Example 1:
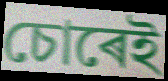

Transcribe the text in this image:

চোৰেই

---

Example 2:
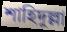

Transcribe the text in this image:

শাহিদুল্লা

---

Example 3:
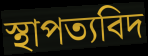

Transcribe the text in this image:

স্থাপত্যবিদ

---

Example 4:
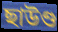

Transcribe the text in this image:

ছাউণ্ড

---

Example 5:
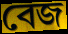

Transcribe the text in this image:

বেজ